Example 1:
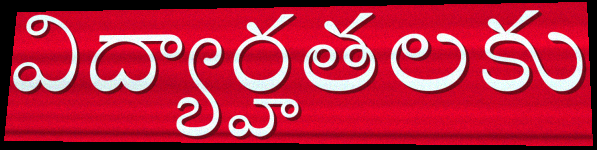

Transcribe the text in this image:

విద్యార్హతలకు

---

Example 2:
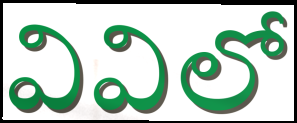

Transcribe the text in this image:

వివిలో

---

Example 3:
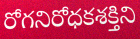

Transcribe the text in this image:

రోగనిరోధకశక్తిని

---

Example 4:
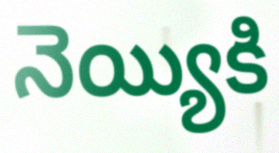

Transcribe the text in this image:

నెయ్యికి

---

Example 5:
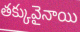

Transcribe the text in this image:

తక్కువైనాయి